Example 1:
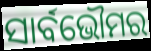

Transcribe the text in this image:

ସାର୍ବଭୌମର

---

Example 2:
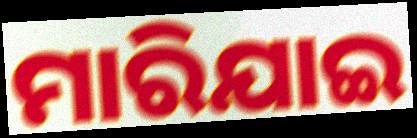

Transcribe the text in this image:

ମାରିଯାଇ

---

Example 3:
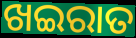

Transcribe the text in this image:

ଖଇରାତ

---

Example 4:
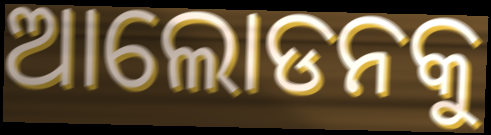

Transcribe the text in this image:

ଆଲୋଡନକୁ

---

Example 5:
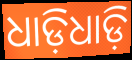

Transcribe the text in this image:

ଧାଡ଼ିଧାଡ଼ି